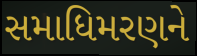
સમાધિમરણને